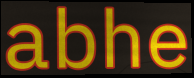
abhe